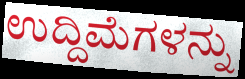
ಉದ್ದಿಮೆಗಳನ್ನು